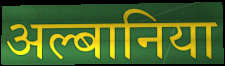
अल्बानिया